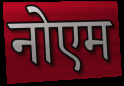
नोएम